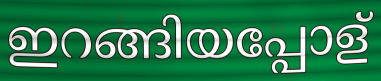
ഇറങ്ങിയപ്പോള്